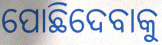
ପୋଛିଦେବାକୁ